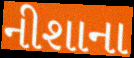
નીશાના